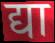
द्या